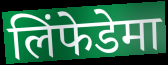
लिंफेडेमा